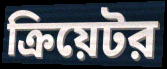
ক্রিয়েটর